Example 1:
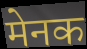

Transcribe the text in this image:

मेनक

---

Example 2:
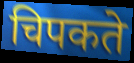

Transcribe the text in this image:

चिपकते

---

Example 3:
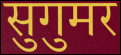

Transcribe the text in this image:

सुगुमर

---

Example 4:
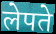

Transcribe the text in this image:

लेपते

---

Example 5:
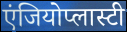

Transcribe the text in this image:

एंजियोप्लास्टी